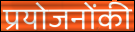
प्रयोजनोंकी